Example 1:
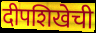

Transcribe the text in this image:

दीपशिखेची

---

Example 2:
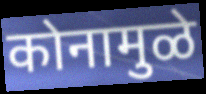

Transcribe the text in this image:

कोनामुळे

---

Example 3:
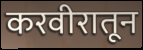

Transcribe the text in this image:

करवीरातून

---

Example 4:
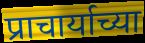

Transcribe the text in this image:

प्राचार्याच्या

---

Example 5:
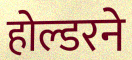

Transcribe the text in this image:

होल्डरने